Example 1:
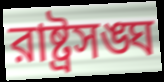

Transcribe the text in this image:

রাষ্ট্রসঙ্ঘ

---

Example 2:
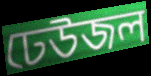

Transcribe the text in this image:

ঢেউজল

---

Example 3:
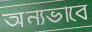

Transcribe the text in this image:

অন্যভাবে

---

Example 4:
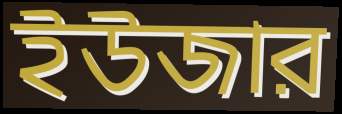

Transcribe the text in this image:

ইউজার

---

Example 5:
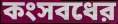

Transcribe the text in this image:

কংসবধের